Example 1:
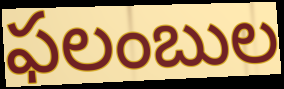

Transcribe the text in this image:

ఫలంబుల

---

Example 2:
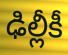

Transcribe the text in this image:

ఢిల్లీకీ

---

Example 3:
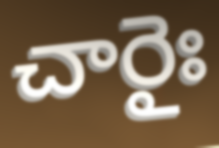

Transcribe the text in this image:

చారైః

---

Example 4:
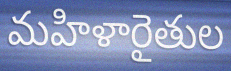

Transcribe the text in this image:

మహిళారైతుల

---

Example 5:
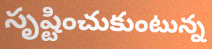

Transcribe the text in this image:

సృష్టించుకుంటున్న